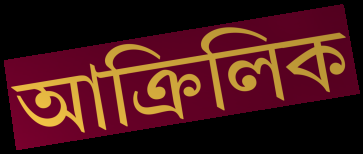
আক্ৰিলিক